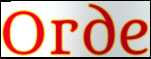
Orde